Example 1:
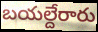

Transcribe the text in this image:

బయల్దేరారు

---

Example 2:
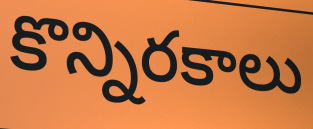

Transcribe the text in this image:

కొన్నిరకాలు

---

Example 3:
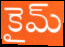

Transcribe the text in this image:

కైమ్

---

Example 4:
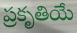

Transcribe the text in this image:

ప్రకృతియే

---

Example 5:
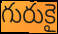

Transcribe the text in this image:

గురుకై